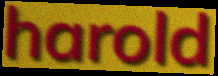
harold